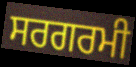
ਸਰਗਰਮੀ